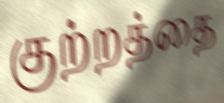
குற்றத்தை